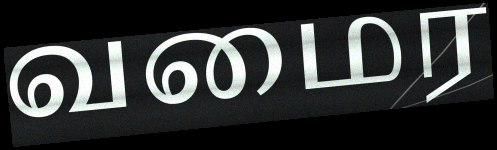
வமைர